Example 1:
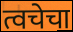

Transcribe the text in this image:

त्वचेचा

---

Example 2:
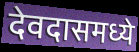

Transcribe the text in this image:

देवदासमध्ये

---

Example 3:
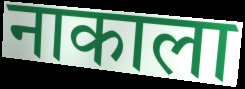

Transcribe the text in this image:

नाकाला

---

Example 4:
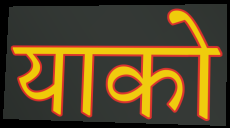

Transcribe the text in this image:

याको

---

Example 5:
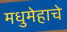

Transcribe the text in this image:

मधुमेहाचे